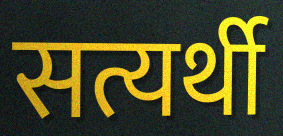
सत्यर्थी